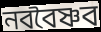
নববৈষ্ণব